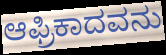
ಆಫ್ರಿಕಾದವನು